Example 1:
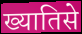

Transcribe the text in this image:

ख्यातिसे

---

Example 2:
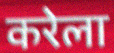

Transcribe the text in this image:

करेला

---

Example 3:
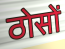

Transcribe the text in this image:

ठोसों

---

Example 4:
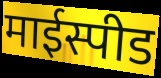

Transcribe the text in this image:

माईस्पीड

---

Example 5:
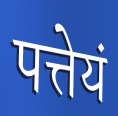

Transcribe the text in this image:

पत्तेयं